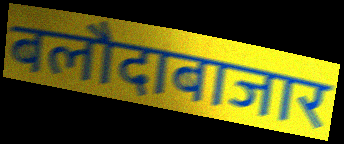
बलौदाबाजार